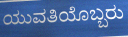
ಯುವತಿಯೊಬ್ಬರು